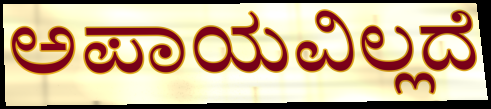
ಅಪಾಯವಿಲ್ಲದೆ